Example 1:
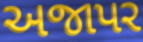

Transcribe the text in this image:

અજાપર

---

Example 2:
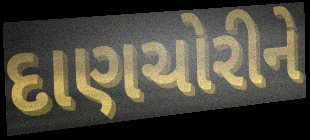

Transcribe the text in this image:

દાણચોરીને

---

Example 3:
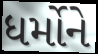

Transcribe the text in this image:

ધર્મોને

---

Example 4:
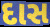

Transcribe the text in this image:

દાસ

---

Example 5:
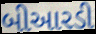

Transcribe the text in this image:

બીઆરડી